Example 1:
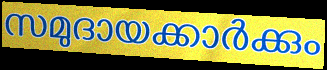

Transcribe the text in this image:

സമുദായക്കാർക്കും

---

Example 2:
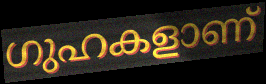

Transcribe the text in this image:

ഗുഹകളാണ്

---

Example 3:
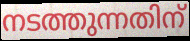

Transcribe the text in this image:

നടത്തുന്നതിന്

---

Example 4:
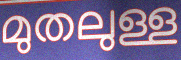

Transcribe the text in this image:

മുതലുള്ള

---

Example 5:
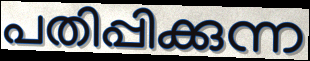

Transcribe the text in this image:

പതിപ്പിക്കുന്ന